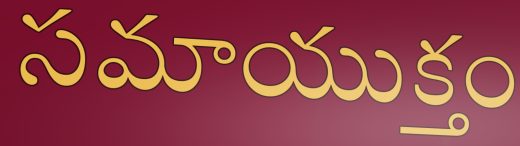
సమాయుక్తం